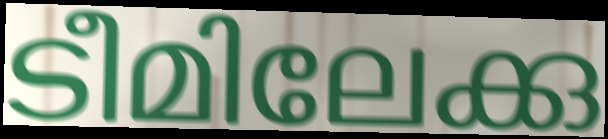
ടീമിലേക്കു